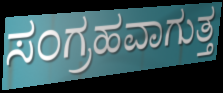
ಸಂಗ್ರಹವಾಗುತ್ತ